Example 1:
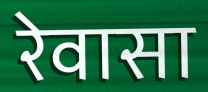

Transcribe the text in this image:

रेवासा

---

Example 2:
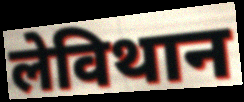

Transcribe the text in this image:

लेविथान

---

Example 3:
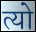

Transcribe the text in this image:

त्यो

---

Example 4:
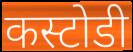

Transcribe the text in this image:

कस्टोडी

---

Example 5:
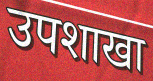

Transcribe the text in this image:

उपशाखा